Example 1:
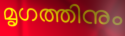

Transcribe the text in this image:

മൃഗത്തിനും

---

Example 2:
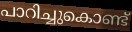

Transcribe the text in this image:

പാറിച്ചുകൊണ്ട്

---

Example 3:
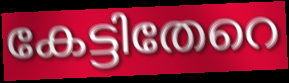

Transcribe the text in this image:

കേട്ടിതേറെ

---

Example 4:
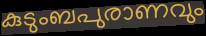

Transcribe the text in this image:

കുടുംബപുരാണവും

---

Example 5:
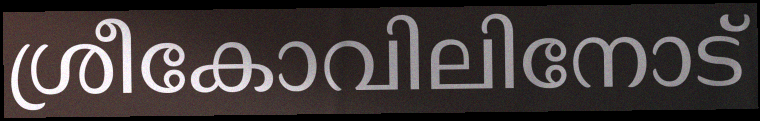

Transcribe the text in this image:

ശ്രീകോവിലിനോട്